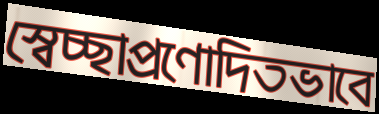
স্বেচ্ছাপ্রণোদিতভাবে